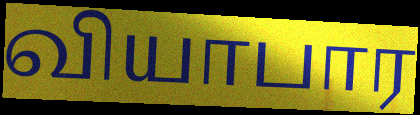
வியாபார